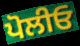
ਪੋਲੀਓ